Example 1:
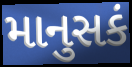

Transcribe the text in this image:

માનુસકં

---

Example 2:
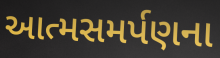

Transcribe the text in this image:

આત્મસમર્પણના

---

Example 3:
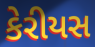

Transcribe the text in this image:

કેરીયસ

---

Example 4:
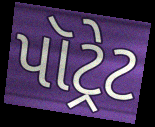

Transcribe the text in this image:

પૉટ્રેટ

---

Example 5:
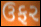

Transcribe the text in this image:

ઉફર